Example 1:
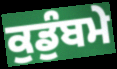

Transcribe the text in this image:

ਕੁਡੁੰਬਮੇ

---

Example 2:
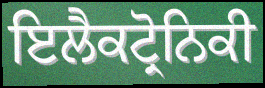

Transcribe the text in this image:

ਇਲੈਕਟ੍ਰੋਨਿਕੀ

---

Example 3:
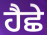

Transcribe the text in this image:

ਹੈਛੇ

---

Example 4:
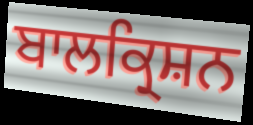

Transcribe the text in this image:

ਬਾਲਕ੍ਰਿਸ਼ਨ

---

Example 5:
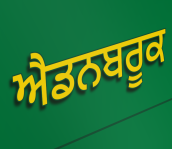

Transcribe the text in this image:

ਐਡਨਬਰੂਕ